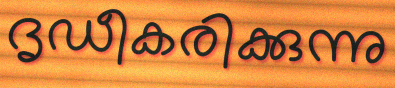
ദൃഡീകരിക്കുന്നു